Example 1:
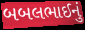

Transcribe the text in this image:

બબલભાઈનું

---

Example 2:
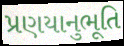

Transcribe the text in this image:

પ્રણયાનુભૂતિ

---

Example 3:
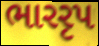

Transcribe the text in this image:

ભારરૃપ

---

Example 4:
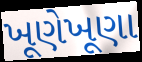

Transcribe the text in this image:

ખૂણેખૂણા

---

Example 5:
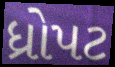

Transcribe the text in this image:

ધ્રોપટ